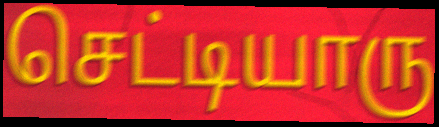
செட்டியாரு